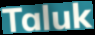
Taluk